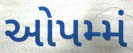
ઓપમ્મં